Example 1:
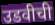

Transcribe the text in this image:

उडवीची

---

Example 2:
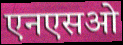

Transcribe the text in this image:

एनएसओ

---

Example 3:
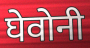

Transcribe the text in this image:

घेवोनी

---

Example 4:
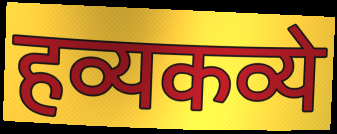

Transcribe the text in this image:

हव्यकव्ये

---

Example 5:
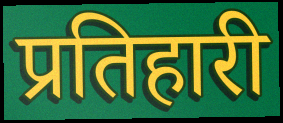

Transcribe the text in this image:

प्रतिहारी